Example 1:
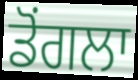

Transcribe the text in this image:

ਡੋਂਗਲਾ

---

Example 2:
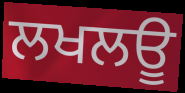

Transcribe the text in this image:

ਲਖਲਊ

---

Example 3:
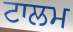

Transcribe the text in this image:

ਟਾਲਮ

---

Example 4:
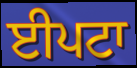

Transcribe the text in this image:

ਈਪਟਾ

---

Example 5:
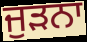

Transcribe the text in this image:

ਜੁੜਨਾ